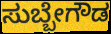
ಸುಬ್ಬೇಗೌಡ